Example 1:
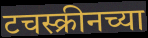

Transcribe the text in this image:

टचस्क्रीनच्या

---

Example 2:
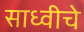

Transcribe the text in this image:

साध्वीचे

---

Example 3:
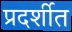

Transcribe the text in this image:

प्रदर्शीत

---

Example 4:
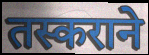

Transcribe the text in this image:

तस्कराने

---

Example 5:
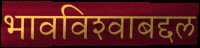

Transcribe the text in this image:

भावविश्वाबद्दल